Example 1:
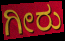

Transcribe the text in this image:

ಗೀರು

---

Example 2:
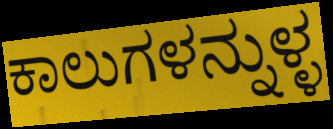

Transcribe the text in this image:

ಕಾಲುಗಳನ್ನುಳ್ಳ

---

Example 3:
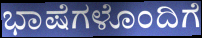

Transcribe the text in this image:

ಭಾಷೆಗಳೊಂದಿಗೆ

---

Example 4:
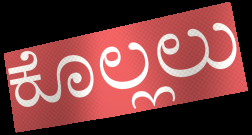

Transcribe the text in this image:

ಕೊಲ್ಲಲು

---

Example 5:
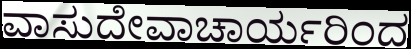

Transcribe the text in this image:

ವಾಸುದೇವಾಚಾರ್ಯರಿಂದ